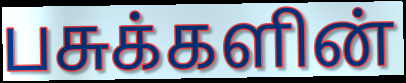
பசுக்களின்